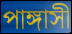
পাঙ্গাসী